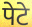
पेटे